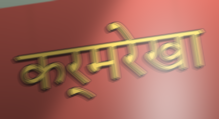
कर्मरेखा